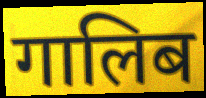
गालिब